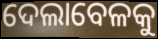
ଦେଲାବେଳକୁ